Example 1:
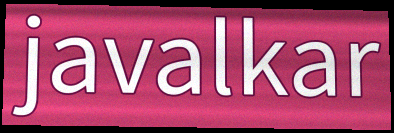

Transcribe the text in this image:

javalkar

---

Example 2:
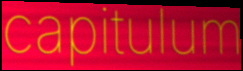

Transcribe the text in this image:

capitulum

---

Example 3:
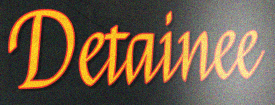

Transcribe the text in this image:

Detainee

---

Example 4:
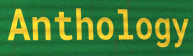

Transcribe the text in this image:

Anthology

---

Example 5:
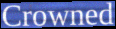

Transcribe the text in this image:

Crowned